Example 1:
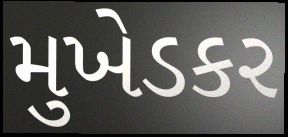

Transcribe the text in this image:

મુખેડકર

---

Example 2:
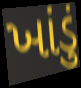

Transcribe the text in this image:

ખાંડું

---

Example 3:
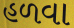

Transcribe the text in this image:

હળવા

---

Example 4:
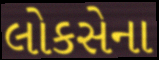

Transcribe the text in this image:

લોકસેના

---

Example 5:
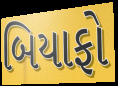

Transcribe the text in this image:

બિયાફો